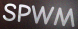
SPWM